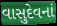
વાસુદેવનાં